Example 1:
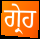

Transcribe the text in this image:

ਗ੍ਰੇਹ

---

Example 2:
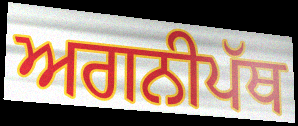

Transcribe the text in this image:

ਅਗਨੀਪੱਥ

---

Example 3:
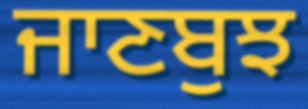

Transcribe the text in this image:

ਜਾਣਬੁਝ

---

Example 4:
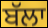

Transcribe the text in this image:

ਬੱਲਾ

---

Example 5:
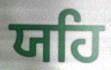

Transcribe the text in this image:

ਯਹਿ